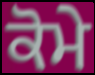
ਕੋਮੇ